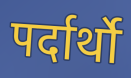
पर्दार्थो